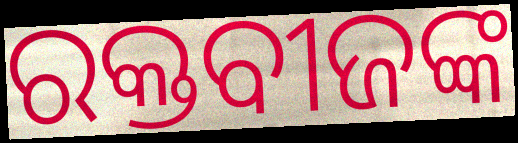
ରକ୍ତବୀଜଙ୍କ